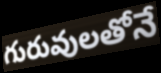
గురువులతోనే